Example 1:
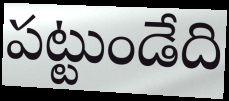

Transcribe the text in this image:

పట్టుండేది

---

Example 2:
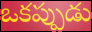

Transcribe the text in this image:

ఒకప్పుడు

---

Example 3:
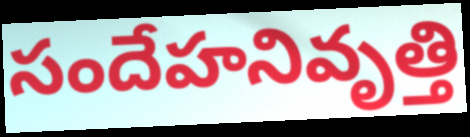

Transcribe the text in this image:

సందేహనివృత్తి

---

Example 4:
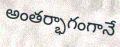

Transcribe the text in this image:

అంతర్భాగంగానే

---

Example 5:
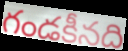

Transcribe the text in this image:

గండకీనది